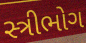
સ્ત્રીભોગ